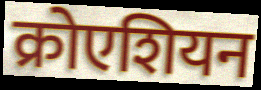
क्रोएशियन